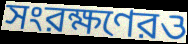
সংরক্ষণেরও